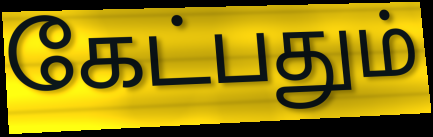
கேட்பதும்